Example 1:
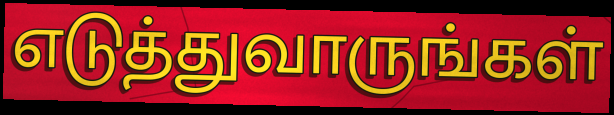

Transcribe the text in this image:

எடுத்துவாருங்கள்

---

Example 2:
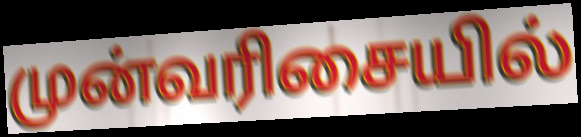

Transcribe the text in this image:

முன்வரிசையில்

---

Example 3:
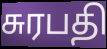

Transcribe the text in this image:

சுரபதி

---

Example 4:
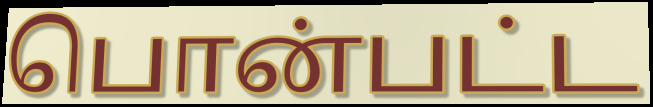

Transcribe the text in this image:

பொன்பட்ட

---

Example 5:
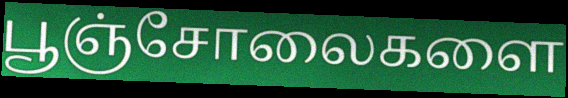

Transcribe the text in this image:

பூஞ்சோலைகளை